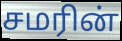
சமரின்